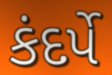
કંદર્પે